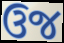
ઉજ